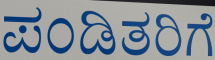
ಪಂಡಿತರಿಗೆ